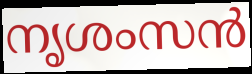
നൃശംസൻ